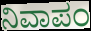
ನಿವಾಪಂ